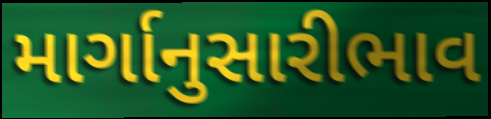
માર્ગાનુસારીભાવ